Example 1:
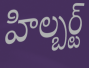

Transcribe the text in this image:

హిల్బర్ట్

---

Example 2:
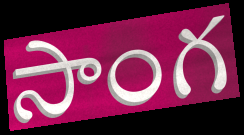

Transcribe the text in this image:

సాంగ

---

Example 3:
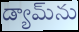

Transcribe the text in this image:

డ్యామ్‌ను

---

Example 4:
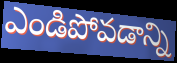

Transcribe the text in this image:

ఎండిపోవడాన్ని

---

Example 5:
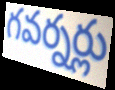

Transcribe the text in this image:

గవర్నర్లు